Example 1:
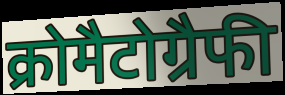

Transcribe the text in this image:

क्रोमैटोग्रैफी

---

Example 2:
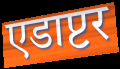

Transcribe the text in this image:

एडाप्टर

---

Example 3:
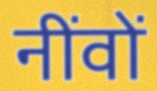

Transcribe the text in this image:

नींवों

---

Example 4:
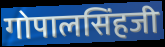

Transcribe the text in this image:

गोपालसिंहजी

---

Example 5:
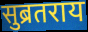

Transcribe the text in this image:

सुब्रतराय